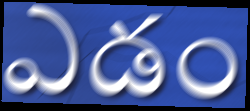
ఎడం